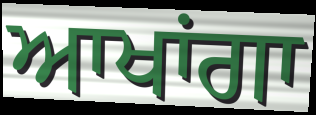
ਆਖਾਂਗਾ